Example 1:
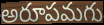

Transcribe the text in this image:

అరూపమగు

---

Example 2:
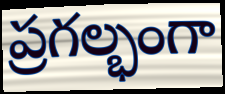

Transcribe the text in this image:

ప్రగల్భంగా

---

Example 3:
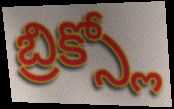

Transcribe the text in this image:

బ్రిక్స్లో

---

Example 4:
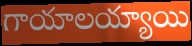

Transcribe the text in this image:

గాయాలయ్యాయి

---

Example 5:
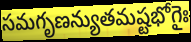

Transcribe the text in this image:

సమగృణన్యుతమష్టభోగైః